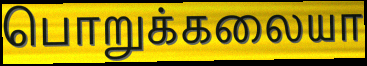
பொறுக்கலையா